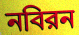
নবিরন